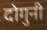
दोगुनी